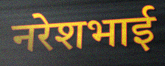
नरेशभाई